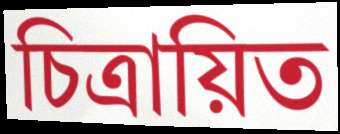
চিত্ৰায়িত